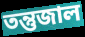
তন্তুজাল